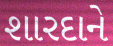
શારદાને